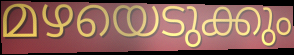
മഴയെടുക്കും